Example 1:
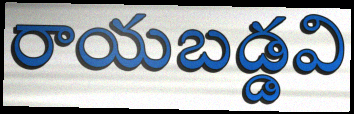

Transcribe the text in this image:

రాయబడ్డవి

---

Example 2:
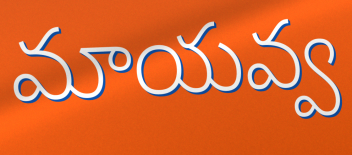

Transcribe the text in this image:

మాయవ్వ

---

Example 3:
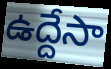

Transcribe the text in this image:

ఉద్దేసా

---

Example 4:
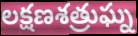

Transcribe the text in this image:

లక్షణశత్రుఘ్న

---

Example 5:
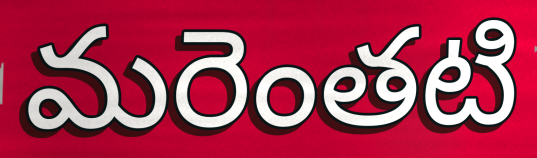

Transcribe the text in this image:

మరెంతటి